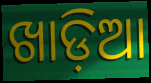
ଖାଡ଼ିଆ